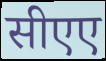
सीएए